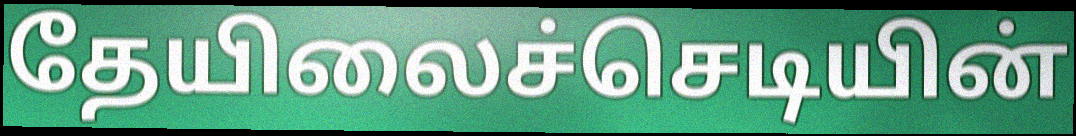
தேயிலைச்செடியின்